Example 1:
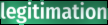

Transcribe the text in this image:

legitimation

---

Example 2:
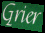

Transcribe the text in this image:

Grier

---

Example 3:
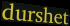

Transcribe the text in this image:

durshet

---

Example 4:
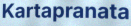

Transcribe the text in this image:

Kartapranata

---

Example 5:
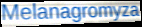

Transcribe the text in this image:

Melanagromyza